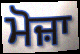
ਮੋਜ਼ਾ